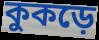
কুকড়ে